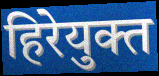
हिरेयुक्त